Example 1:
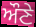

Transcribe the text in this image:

ਔਣੇ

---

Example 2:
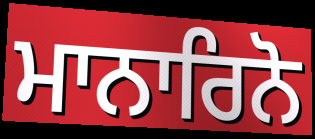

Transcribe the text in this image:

ਮਾਨਾਰਿਨੋ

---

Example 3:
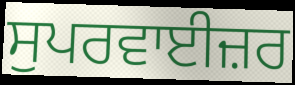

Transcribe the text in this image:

ਸੁਪਰਵਾਈਜ਼ਰ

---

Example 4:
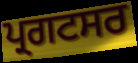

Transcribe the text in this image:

ਪ੍ਰਗਟਸਰ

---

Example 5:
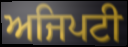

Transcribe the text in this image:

ਅਜਿਪਟੀ